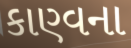
કાણ્વના